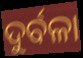
ଦୁର୍ବଳା